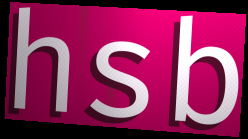
hsb